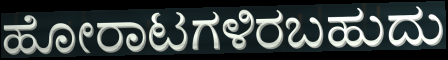
ಹೋರಾಟಗಳಿರಬಹುದು